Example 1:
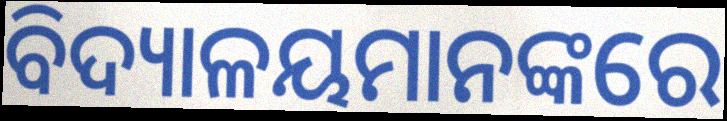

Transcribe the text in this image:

ବିଦ୍ୟାଳୟମାନଙ୍କରେ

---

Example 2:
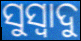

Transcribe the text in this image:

ସୁସ୍ୱାଦୁ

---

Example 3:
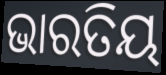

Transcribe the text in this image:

ଭାରତିୟ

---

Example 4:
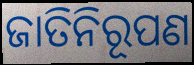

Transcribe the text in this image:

ଜାତିନିରୂପଣ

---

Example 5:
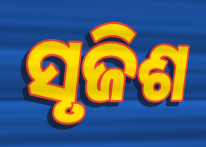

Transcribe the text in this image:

ସୃଜିଶ